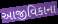
આજીવિકાના